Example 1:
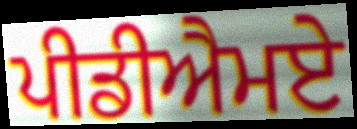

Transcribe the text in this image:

ਪੀਡੀਐਮਏ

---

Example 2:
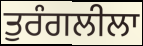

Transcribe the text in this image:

ਤੁਰੰਗਲੀਲਾ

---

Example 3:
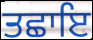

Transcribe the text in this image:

ਤਛਾਇ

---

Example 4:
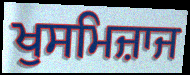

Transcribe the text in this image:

ਖੁਸਮਿਜ਼ਾਜ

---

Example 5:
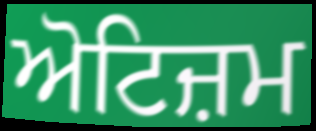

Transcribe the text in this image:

ਅੋਟਿਜ਼ਮ